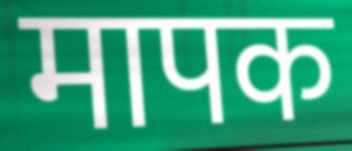
मापक